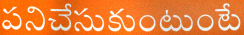
పనిచేసుకుంటుంటే